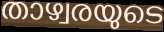
താഴ്വരയുടെ